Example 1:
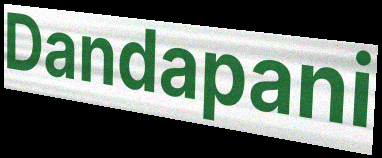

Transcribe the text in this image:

Dandapani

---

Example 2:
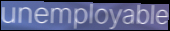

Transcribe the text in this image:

unemployable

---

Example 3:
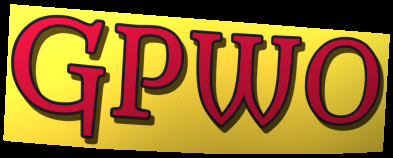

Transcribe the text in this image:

GPWO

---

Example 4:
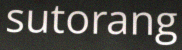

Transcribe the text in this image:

sutorang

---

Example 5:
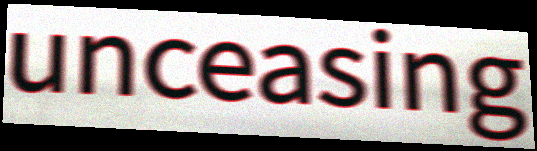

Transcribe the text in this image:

unceasing